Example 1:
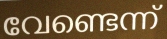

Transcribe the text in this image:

വേണ്ടെന്ന്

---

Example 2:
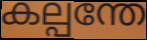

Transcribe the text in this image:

കല്പന്തേ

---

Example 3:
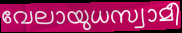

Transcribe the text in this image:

വേലായുധസ്വാമീ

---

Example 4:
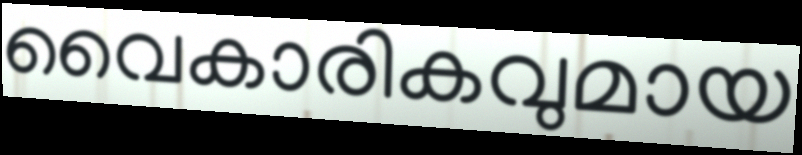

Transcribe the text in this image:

വൈകാരികവുമായ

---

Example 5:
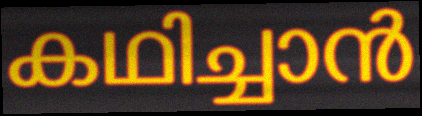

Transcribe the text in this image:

കഥിച്ചാൻ